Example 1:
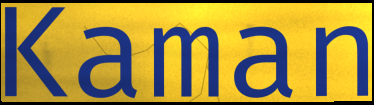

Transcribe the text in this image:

Kaman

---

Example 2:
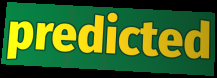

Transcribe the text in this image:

predicted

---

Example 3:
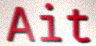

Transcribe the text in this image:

Ait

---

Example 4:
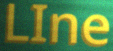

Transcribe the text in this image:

LIne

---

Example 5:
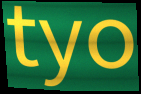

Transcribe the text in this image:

tyo